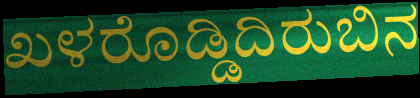
ಖಳರೊಡ್ಡಿದಿರುಬಿನ